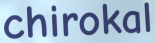
chirokal